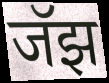
जॅझ